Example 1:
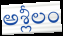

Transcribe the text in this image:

అశ్లీలం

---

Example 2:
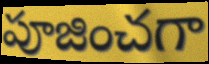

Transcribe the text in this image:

పూజించగా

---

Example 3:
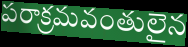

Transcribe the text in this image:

పరాక్రమవంతులైన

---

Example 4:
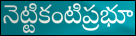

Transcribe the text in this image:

నెట్టికంటిప్రభూ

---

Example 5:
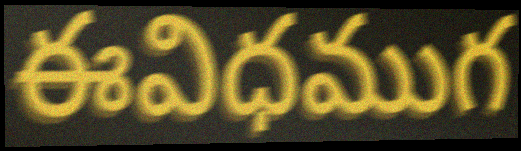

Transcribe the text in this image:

ఈవిధముగ